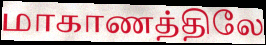
மாகாணத்திலே